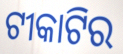
ଟୀକାଟିର